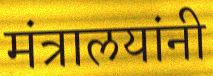
मंत्रालयांनी